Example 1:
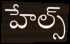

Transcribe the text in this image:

హేల్స్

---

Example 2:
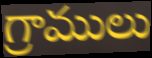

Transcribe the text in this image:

గ్రాములు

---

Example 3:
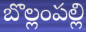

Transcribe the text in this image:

బొల్లంపల్లి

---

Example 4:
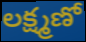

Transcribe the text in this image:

లక్ష్మణో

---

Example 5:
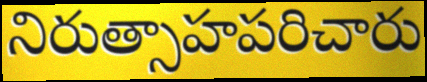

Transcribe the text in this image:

నిరుత్సాహపరిచారు